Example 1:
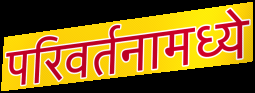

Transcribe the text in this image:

परिवर्तनामध्ये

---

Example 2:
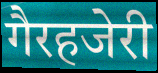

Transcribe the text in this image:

गैरहजेरी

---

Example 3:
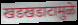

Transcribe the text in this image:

खडखडाटामुळे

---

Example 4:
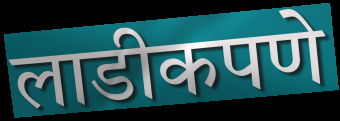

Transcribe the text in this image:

लाडीकपणे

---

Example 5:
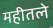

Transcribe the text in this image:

महीतले